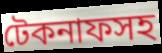
টেকনাফসহ